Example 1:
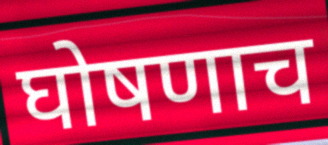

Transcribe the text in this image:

घोषणाच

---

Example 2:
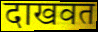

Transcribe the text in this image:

दाखवत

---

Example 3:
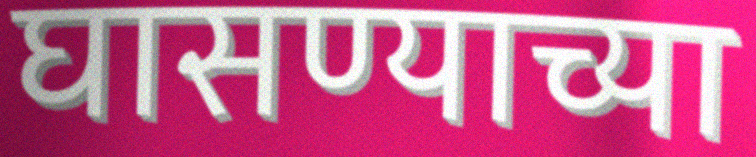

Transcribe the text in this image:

घासण्याच्या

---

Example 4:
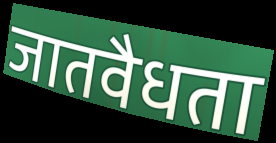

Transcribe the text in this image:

जातवैधता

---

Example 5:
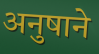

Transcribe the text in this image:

अनुषाने